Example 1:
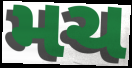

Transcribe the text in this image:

મચ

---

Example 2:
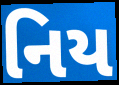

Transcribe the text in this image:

નિય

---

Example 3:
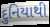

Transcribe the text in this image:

દુનિયાથી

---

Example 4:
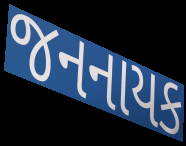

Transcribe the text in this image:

જનનાયક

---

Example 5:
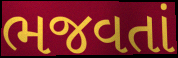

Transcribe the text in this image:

ભજવતાં